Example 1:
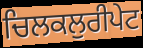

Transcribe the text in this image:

ਚਿਲਕਲੁਰੀਪੇਟ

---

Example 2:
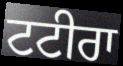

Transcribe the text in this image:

ਟਟੀਰਾ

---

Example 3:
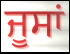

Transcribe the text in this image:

ਜੂਸਾਂ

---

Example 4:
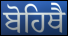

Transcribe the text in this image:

ਬੋਹਿਥੈ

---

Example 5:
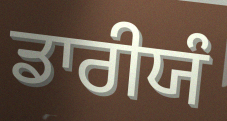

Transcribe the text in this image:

ਡਾਰੀਯੰ